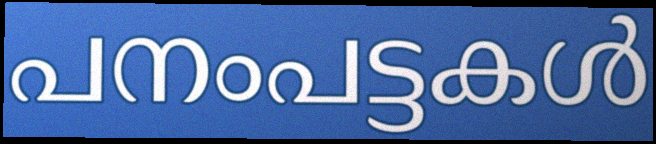
പനംപട്ടകൾ